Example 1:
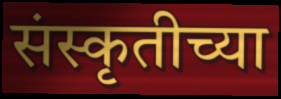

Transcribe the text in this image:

संस्कृतीच्या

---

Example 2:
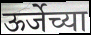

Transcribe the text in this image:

ऊर्जेच्या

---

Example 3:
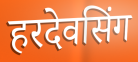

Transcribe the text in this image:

हरदेवसिंग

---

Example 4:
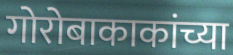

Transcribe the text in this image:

गोरोबाकाकांच्या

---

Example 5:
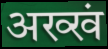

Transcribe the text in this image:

अख्खं